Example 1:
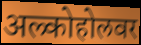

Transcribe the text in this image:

अल्कोहोलवर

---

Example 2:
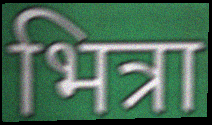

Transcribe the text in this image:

भित्रा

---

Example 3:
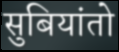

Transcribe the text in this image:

सुबियांतो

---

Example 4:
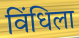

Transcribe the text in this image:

विंधिला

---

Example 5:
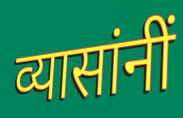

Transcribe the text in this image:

व्यासांनीं